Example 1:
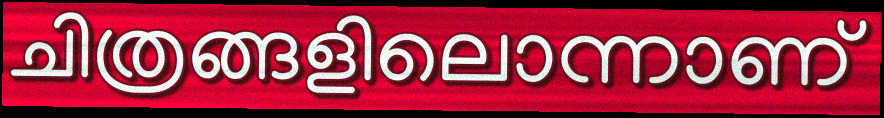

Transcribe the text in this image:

ചിത്രങ്ങളിലൊന്നാണ്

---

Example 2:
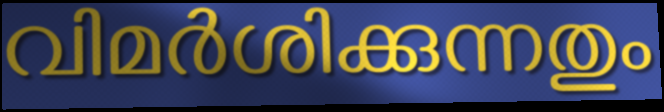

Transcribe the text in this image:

വിമർശിക്കുന്നതും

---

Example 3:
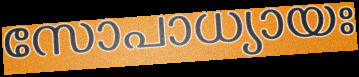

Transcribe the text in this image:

സോപാധ്യായഃ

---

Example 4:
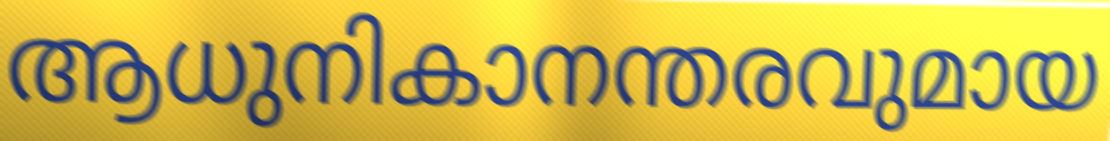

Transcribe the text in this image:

ആധുനികാനന്തരവുമായ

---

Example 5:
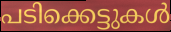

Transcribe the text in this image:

പടിക്കെട്ടുകൾ